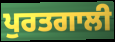
ਪੁਰਤਗਾਲੀ